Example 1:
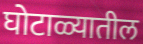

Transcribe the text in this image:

घोटाळ्यातील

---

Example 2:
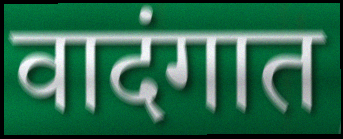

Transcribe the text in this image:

वादंगात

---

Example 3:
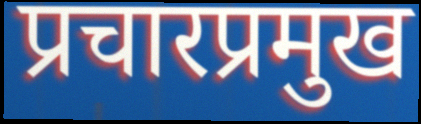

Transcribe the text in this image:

प्रचारप्रमुख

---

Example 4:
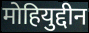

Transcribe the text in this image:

मोहियुद्दीन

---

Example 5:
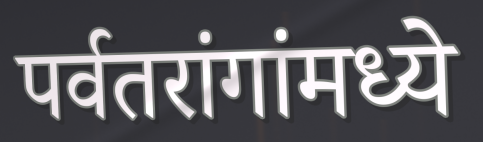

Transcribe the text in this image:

पर्वतरांगांमध्ये